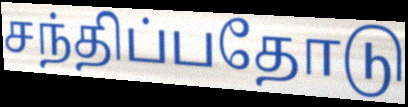
சந்திப்பதோடு